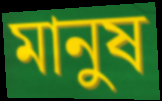
মানুষ